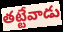
తట్టేవాడు